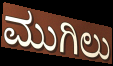
ಮುಗಿಲು